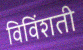
विविंशती